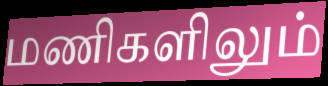
மணிகளிலும்